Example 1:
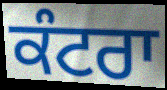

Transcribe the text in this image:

ਕੰਟਰਾ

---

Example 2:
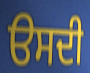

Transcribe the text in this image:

ੳਸਦੀ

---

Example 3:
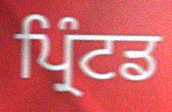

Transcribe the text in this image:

ਪ੍ਰਿੰਟਡ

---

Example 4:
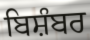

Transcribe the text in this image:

ਬਿਸ਼ੰਬਰ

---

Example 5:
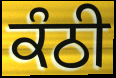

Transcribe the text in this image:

ਕੰਠੀ